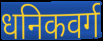
धनिकवर्ग